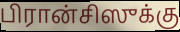
பிரான்சிஸுக்கு